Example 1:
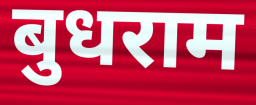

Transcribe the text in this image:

बुधराम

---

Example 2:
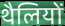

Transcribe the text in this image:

थैलियों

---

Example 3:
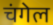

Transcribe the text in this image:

चंगेल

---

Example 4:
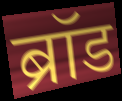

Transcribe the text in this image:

ब्रॉड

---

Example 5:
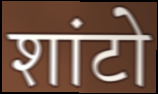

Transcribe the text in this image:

शांटो